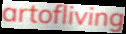
artofliving